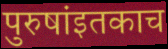
पुरुषांइतकाच